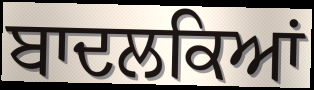
ਬਾਦਲਕਿਆਂ